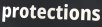
protections